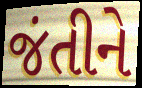
જંતીને